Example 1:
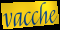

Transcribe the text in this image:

vacche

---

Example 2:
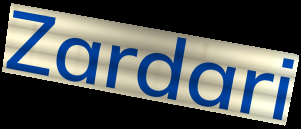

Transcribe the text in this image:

Zardari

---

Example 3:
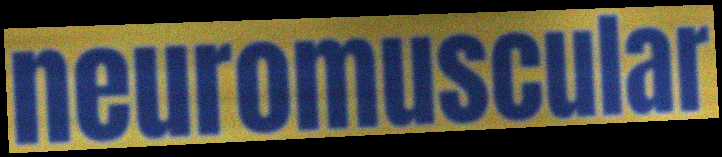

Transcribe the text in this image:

neuromuscular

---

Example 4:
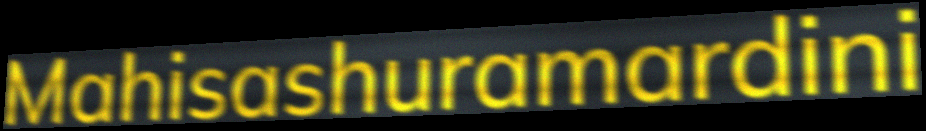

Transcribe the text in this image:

Mahisashuramardini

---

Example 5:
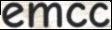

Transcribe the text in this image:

emcc